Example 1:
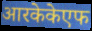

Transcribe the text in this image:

आरकेकेएफ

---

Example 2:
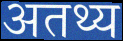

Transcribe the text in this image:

अतथ्य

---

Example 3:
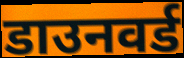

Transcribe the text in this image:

डाउनवर्ड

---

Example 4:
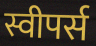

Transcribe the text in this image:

स्वीपर्स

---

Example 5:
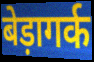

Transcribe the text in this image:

बेड़ागर्क